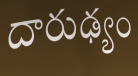
దారుఢ్యం